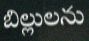
బిల్లులను